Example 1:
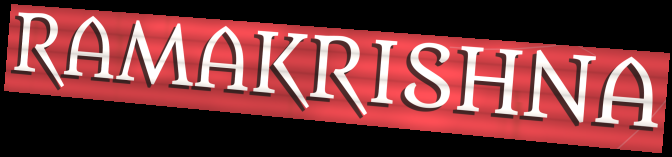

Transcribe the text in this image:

RAMAKRISHNA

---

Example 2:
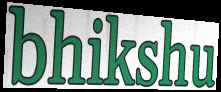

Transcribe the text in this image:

bhikshu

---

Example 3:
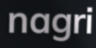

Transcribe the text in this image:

nagri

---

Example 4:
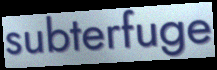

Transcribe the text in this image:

subterfuge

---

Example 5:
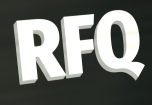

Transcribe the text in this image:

RFQ